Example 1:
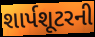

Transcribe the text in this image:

શાર્પશૂટરની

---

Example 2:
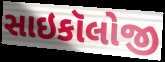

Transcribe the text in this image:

સાઇકૉલોજી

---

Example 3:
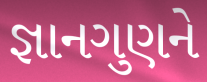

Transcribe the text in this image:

જ્ઞાનગુણને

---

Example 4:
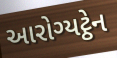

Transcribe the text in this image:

આરોગ્યટ્ઠેન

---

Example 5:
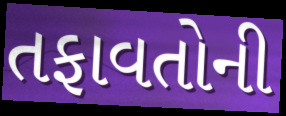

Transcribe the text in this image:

તફાવતોની